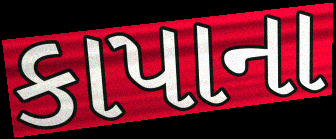
કાપાના